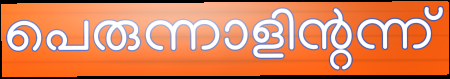
പെരുന്നാളിന്റന്ന്